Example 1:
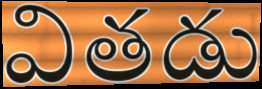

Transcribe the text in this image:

వితడు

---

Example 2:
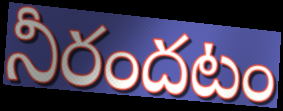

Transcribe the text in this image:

నీరందటం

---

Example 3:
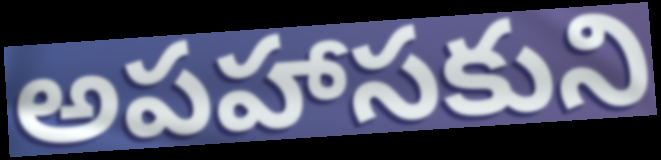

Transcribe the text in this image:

అపహాసకుని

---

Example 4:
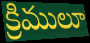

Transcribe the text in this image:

క్రిములూ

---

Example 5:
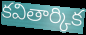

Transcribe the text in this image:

కవితార్కిక